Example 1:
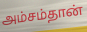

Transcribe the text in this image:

அம்சம்தான்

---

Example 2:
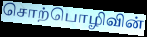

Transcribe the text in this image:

சொற்பொழிவின்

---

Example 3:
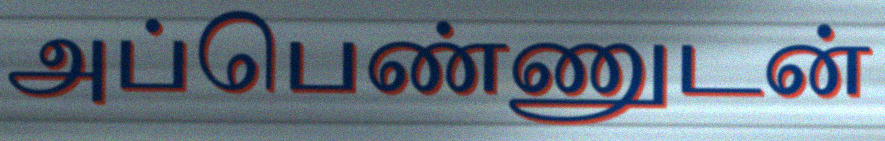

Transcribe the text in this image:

அப்பெண்ணுடன்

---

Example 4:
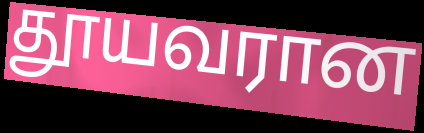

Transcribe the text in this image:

தூயவரான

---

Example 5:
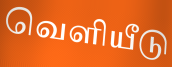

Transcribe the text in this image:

வெளியீடு